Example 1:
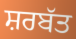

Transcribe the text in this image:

ਸ਼ਰਬੱਤ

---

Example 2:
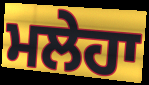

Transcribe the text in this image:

ਮਲੇਹਾ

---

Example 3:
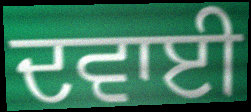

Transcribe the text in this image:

ਦਵਾਈ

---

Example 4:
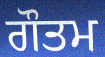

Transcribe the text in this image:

ਗੌਤਮ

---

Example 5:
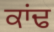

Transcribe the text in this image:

ਕਾਂਢ